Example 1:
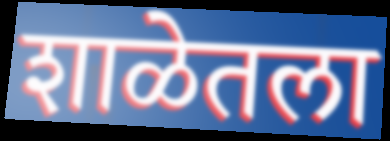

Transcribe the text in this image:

शाळेतला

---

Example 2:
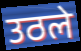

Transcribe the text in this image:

उठले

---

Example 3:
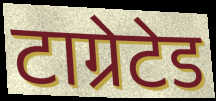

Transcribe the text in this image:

टाग्रेटेड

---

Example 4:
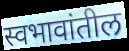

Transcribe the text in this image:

स्वभावांतील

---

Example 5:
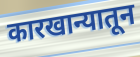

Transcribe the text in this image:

कारखान्यातून